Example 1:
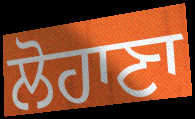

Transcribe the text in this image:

ਲੋਹਾਣਾ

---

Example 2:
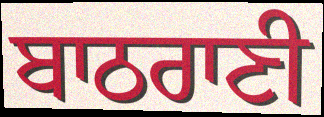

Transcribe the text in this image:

ਬਾਠਰਾਣੀ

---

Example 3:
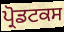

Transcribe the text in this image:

ਪ੍ਰੋਡਟਕਸ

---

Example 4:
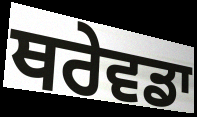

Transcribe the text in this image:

ਥਰੇਵਡਾ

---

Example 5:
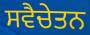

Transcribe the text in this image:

ਸਵੈਚੇਤਨ